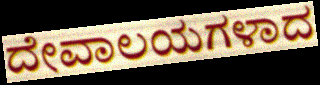
ದೇವಾಲಯಗಳಾದ